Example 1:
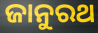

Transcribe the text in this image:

ଜାନୁରଥ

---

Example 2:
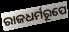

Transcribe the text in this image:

ରାଜଧର୍ମରୂପେ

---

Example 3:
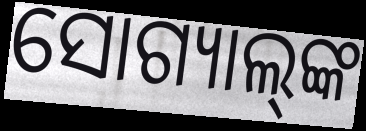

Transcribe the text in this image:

ସୋଗ୍ୟାଲ୍‌ଙ୍କ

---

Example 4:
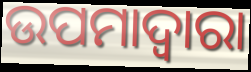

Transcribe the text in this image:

ଉପମାଦ୍ୱାରା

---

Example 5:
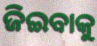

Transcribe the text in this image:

ଜିଇବାକୁ